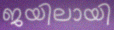
ജയിലായി